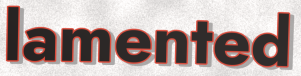
lamented